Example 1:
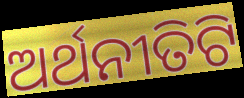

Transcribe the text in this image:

ଅର୍ଥନୀତିଟି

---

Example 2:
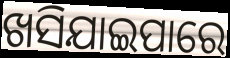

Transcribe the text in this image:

ଖସିଯାଇପାରେ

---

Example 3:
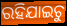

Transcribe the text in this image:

ରହିଯାଇଚୁ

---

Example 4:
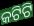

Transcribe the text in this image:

କଟିଟି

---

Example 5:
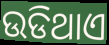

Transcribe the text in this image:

ଉଡିଥାଏ